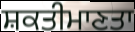
ਸ਼ਕਤੀਮਾਣਤਾ